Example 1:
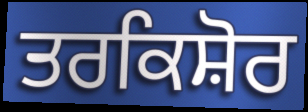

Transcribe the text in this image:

ਤਰਕਿਸ਼ੋਰ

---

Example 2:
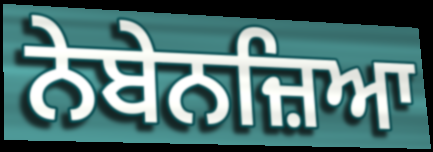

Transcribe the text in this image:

ਨੇਬੇਨਜ਼ਿਆ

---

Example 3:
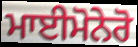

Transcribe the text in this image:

ਮਾਈਮੋਨੇਰੋ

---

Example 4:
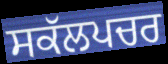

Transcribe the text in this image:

ਸਕੱਲਪਚਰ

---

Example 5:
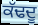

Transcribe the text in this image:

ਕੱਢਦੂ